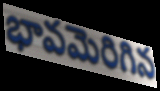
భావమెరిగిన